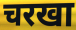
चरखा